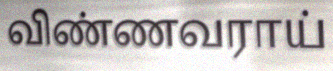
விண்ணவராய்